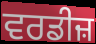
ਵਰਡੀਜ਼